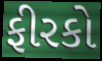
ફીરકો